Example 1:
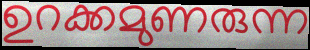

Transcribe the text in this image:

ഉറക്കമുണരുന്ന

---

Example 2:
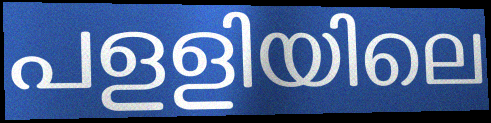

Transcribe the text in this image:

പളളിയിലെ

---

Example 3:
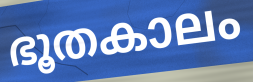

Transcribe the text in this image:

ഭൂതകാലം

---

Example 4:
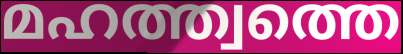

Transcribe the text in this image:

മഹത്ത്വത്തെ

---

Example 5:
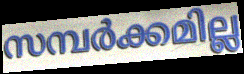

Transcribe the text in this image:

സമ്പർക്കമില്ല